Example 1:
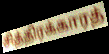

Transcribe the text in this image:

சித்திரக்காரத்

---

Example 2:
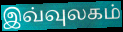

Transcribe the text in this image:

இவ்வுலகம்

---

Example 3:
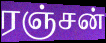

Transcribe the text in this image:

ரஞ்சன்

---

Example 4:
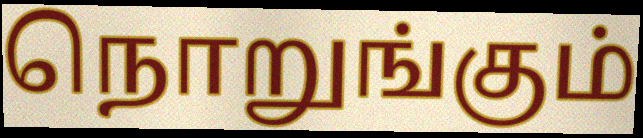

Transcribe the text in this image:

நொறுங்கும்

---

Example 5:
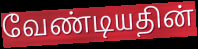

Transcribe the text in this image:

வேண்டியதின்